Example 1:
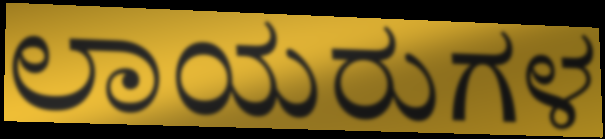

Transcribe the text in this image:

ಲಾಯರುಗಳ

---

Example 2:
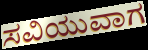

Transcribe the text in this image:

ಸವಿಯುವಾಗ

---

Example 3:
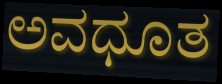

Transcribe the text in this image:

ಅವಧೂತ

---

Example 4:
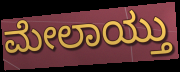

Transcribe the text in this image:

ಮೇಲಾಯ್ತು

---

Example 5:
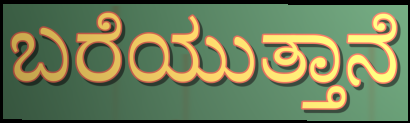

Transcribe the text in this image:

ಬರೆಯುತ್ತಾನೆ